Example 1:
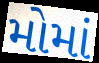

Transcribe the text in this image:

મોમાં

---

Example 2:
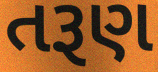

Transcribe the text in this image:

તરૂણ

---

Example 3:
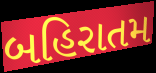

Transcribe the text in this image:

બહિરાતમ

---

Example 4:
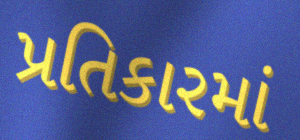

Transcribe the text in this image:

પ્રતિકારમાં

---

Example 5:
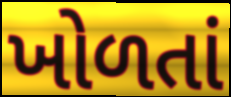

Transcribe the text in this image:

ખોળતાં